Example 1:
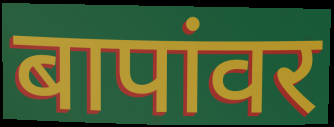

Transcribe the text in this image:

बापांवर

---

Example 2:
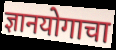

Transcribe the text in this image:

ज्ञानयोगाचा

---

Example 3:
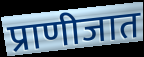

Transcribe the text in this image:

प्राणीजात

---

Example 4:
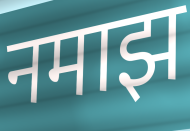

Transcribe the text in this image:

नमाझ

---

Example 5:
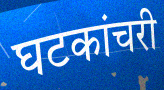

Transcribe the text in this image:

घटकांचरी